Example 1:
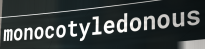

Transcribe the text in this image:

monocotyledonous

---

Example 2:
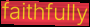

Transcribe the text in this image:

faithfully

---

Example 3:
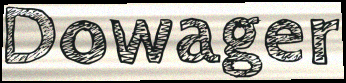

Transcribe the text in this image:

Dowager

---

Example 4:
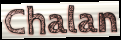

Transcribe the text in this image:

Chalan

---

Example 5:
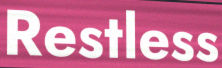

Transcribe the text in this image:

Restless